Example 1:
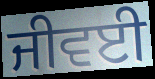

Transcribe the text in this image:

ਜੀਵਈ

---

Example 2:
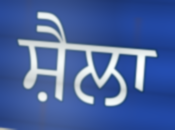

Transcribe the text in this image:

ਸ਼ੈਲਾ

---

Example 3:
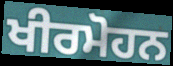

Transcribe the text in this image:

ਖੀਰਮੋਹਨ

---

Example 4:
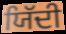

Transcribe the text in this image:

ਯਿੱਦੀ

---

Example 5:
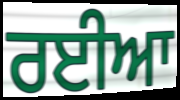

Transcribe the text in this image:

ਰਈਆ